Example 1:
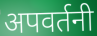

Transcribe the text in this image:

अपवर्तनी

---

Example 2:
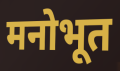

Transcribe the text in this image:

मनोभूत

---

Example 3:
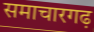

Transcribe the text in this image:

समाचारगढ़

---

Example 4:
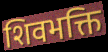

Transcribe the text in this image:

शिवभक्ति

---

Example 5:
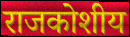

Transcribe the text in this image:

राजकोशीय